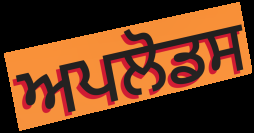
ਅਪਲੋਡਸ